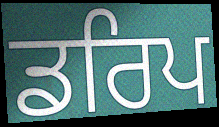
ਡਰਿਪ